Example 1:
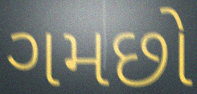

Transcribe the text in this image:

ગમછો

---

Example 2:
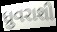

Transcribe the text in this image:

ધ્રુવરાશી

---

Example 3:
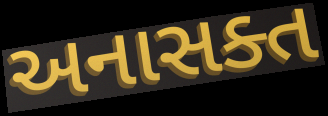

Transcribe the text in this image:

અનાસક્ત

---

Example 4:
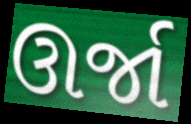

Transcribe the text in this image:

ઊર્જા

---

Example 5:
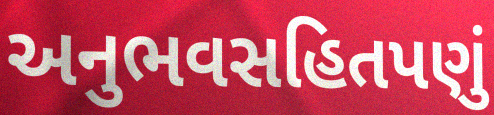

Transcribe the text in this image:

અનુભવસહિતપણું